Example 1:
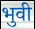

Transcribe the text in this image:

भुवी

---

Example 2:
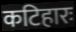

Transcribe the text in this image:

कटिहारः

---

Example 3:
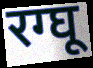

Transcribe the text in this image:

रग्घू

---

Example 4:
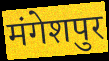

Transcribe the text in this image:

मंगेशपुर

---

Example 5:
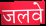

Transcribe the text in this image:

जलवे